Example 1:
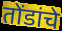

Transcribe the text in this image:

तोंडांचे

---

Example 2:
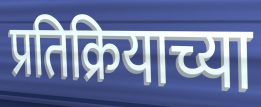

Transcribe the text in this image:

प्रतिक्रियाच्या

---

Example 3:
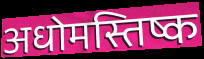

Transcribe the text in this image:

अधोमस्तिष्क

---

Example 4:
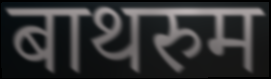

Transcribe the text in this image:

बाथरुम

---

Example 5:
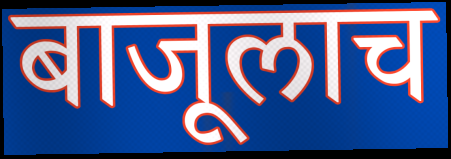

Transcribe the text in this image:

बाजूलाच